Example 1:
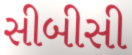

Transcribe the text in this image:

સીબીસી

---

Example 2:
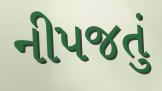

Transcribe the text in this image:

નીપજતું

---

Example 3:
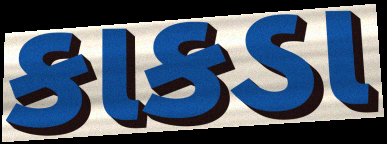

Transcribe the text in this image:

કાકડા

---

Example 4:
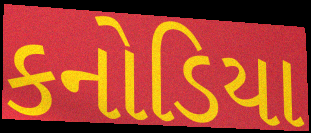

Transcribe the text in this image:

કનોડિયા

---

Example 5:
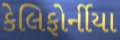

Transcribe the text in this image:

કેલિફોર્નીયા